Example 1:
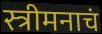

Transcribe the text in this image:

स्त्रीमनाचं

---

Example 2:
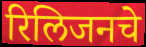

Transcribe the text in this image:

रिलिजनचे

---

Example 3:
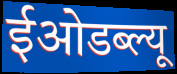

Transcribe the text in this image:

ईओडब्ल्यू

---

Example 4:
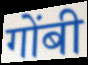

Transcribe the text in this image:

गोंबी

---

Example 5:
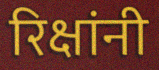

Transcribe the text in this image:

रिक्षांनी